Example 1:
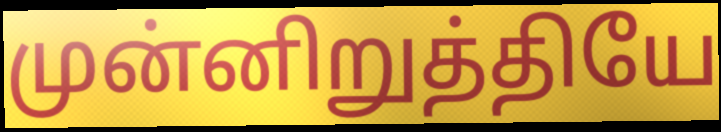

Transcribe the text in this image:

முன்னிறுத்தியே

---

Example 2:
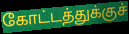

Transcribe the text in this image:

கோட்டத்துக்குச்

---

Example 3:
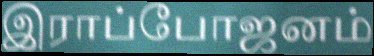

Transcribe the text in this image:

இராப்போஜனம்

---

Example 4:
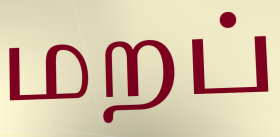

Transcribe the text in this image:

மறப்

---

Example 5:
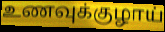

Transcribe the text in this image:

உணவுக்குழாய்